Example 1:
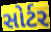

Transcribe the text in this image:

સોર્ટર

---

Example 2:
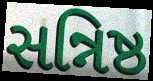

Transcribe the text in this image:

સન્નિષ્ઠ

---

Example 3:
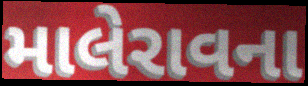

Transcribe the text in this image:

માલેરાવના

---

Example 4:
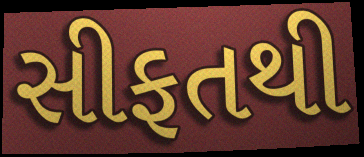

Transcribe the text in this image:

સીફતથી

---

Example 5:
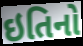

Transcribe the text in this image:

ઇતિનો